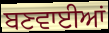
ਬਣਵਾਈਆਂ